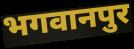
भगवानपुर